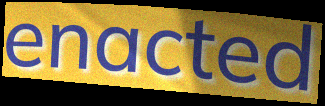
enacted